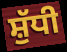
ਸ਼ੁੱਧੀ